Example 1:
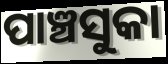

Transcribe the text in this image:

ପାଞ୍ଚସୁକା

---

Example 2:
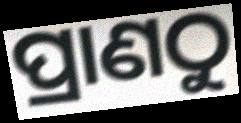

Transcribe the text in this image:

ପ୍ରାଣଠୁ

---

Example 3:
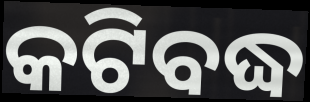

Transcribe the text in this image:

କଟିବଦ୍ଧ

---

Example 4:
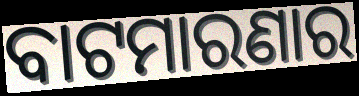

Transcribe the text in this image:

ବାଟମାରଣାର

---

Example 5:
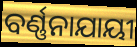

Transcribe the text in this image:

ବର୍ଣ୍ଣନାଯାୟୀ